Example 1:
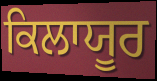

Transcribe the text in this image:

ਕਿਲਾਯੂਰ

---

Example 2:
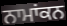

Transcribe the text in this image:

ਨਾਮਾਂਕਨ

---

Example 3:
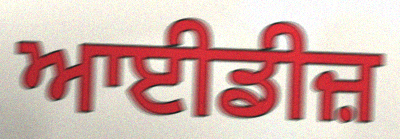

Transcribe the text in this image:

ਆਈਡੀਜ਼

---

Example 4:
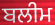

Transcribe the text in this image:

ਬਲੀਮ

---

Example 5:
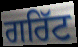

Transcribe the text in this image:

ਗਰਿੱਟ